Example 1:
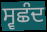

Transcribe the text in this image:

ਸ੍ਵਛੰਦ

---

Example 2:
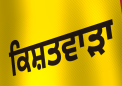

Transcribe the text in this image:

ਕਿਸ਼ਤਵਾੜਾ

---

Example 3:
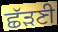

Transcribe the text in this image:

ਛੱੜਣੀ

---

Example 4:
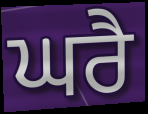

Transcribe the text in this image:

ਘਰੈ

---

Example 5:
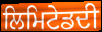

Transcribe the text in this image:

ਲਿਮਿਟੇਡਦੀ